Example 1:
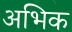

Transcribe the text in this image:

अभिक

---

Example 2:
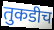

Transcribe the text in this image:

तुकडीच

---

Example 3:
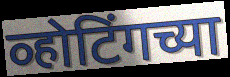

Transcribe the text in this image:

व्होटिंगच्या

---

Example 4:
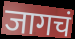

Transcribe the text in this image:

जागचं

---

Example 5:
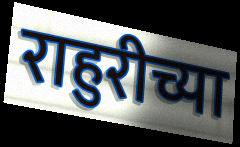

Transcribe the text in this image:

राहुरीच्या